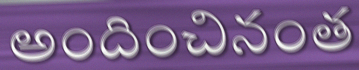
అందించినంత